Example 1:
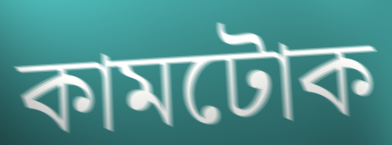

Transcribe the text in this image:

কামটোক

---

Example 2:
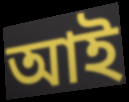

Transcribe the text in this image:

আই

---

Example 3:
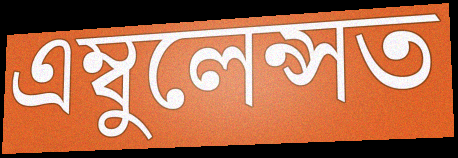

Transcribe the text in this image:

এম্বুলেন্সত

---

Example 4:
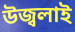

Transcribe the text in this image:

উজ্বলাই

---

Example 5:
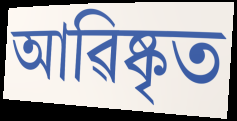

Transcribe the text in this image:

আৱিষ্কৃত